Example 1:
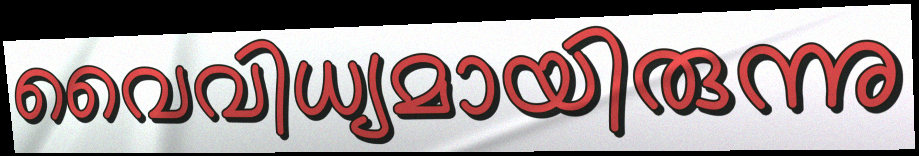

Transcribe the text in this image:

വൈവിധ്യമായിരുന്നു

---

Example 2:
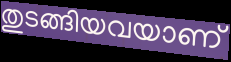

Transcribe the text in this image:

തുടങ്ങിയവയാണ്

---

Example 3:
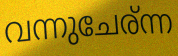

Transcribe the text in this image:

വന്നുചേര്ന്ന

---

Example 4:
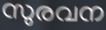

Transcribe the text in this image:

സുരവന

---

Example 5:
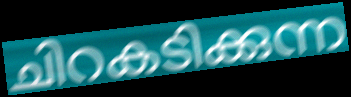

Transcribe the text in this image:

ചിറകടിക്കുന്ന